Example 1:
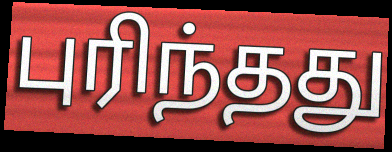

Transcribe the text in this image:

புரிந்தது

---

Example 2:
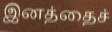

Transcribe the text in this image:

இனத்தைச்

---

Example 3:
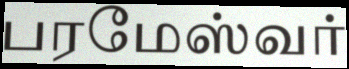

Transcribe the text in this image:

பரமேஸ்வர்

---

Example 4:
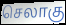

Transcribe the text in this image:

செலாகு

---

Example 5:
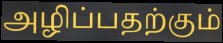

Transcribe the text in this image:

அழிப்பதற்கும்